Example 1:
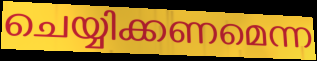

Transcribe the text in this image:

ചെയ്യിക്കണമെന്ന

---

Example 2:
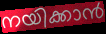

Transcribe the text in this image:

നയിക്കാൻ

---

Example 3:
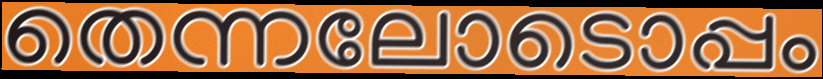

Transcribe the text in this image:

തെന്നലോടൊപ്പം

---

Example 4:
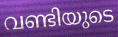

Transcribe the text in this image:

വണ്ടിയുടെ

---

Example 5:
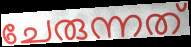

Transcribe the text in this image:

ചേരുന്നത്